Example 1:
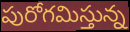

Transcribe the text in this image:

పురోగమిస్తున్న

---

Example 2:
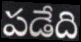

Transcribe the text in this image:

పడేది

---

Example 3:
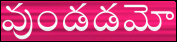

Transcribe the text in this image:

వుండడమో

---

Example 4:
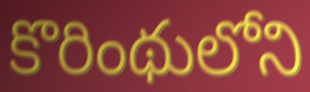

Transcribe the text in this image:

కొరింథులోని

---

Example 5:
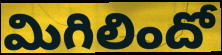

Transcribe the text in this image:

మిగిలిందో